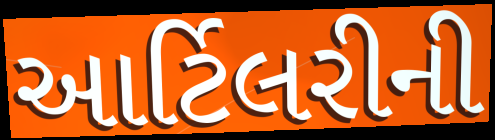
આર્ટિલરીની